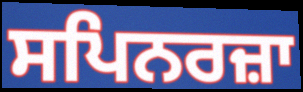
ਸਪਿਨਰਜ਼ਾ